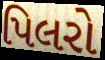
પિલરો